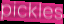
pickles